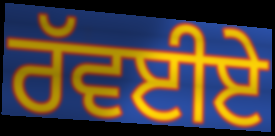
ਰੱਵਈਏ